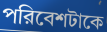
পরিবেশটাকে